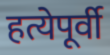
हत्येपूर्वी